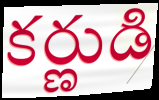
కర్ణుడి